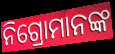
ନିଗ୍ରୋମାନଙ୍କ